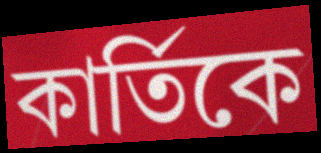
কার্তিকে